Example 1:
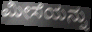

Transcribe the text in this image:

ಮೀಸೆಯನ್ನು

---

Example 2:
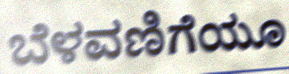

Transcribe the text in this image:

ಬೆಳವಣಿಗೆಯೂ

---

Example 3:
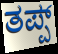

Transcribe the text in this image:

ತಪ್ಪ್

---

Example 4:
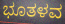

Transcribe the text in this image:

ಭೂತಳವ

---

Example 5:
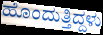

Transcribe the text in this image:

ಹೊಂದುತ್ತಿದ್ದಳು